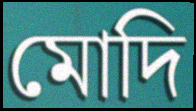
মোদি